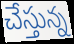
చేస్తున్న